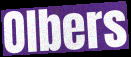
Olbers